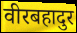
वीरबहादुर